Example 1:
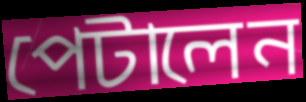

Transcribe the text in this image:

পেটালেন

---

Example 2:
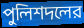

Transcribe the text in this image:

পুলিশদলের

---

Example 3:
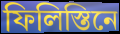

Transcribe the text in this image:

ফিলিস্তিনে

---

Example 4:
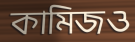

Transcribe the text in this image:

কামিজও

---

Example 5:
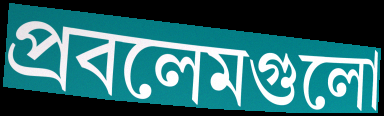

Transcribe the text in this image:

প্রবলেমগুলো